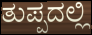
ತುಪ್ಪದಲ್ಲಿ